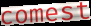
comest